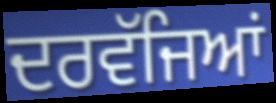
ਦਰਵੱਜਿਆਂ